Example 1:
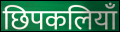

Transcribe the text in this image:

छिपकलियाँ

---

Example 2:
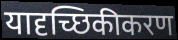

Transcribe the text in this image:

यादृच्छिकीकरण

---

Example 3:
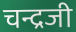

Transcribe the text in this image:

चन्द्रजी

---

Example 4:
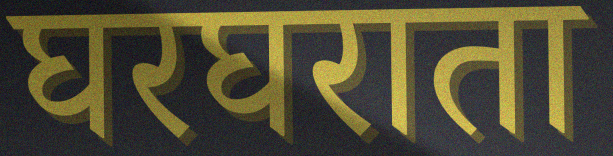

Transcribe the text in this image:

घरघराता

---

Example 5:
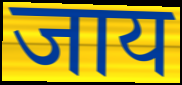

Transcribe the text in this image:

जाय